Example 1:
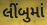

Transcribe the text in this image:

લીંબુમાં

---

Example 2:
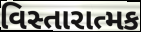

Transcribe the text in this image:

વિસ્તારાત્મક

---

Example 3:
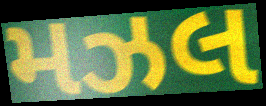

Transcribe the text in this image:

મઝલ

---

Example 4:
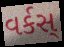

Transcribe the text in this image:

વર્કસ્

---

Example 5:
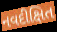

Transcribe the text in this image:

નવદીક્ષિત